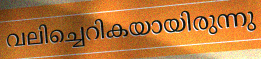
വലിച്ചെറികയായിരുന്നു